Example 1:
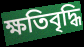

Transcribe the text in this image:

ক্ষতিবৃদ্ধি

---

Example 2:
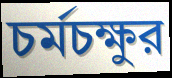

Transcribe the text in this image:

চর্মচক্ষুর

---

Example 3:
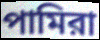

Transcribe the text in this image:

পামিরা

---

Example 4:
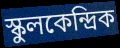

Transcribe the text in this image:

স্কুলকেন্দ্রিক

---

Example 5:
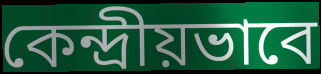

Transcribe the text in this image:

কেন্দ্রীয়ভাবে